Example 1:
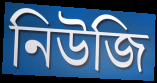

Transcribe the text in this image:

নিউজি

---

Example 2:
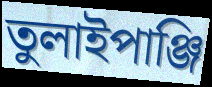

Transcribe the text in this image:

তুলাইপাঞ্জি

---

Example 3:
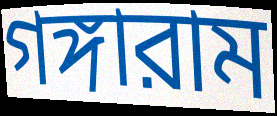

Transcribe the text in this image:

গঙ্গারাম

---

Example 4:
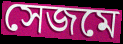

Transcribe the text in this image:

সেজমে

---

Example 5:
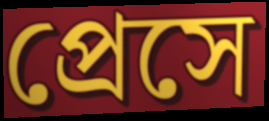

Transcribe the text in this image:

প্রেসে